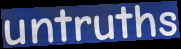
untruths